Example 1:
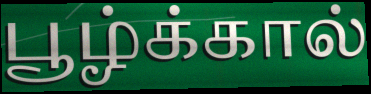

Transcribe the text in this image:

பூழ்க்கால்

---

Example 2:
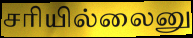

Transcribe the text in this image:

சரியில்லைனு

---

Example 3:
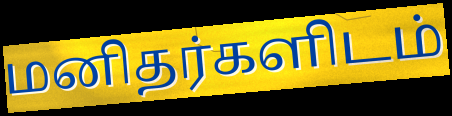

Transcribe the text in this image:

மனிதர்களிடம்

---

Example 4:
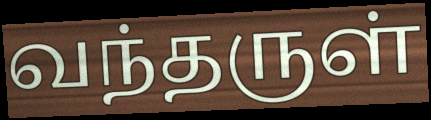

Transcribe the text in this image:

வந்தருள்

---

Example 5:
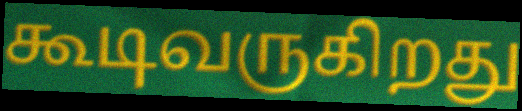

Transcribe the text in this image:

கூடிவருகிறது